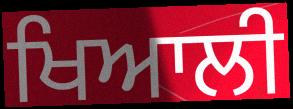
ਖਿਆਲੀ